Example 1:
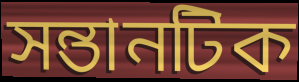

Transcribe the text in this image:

সন্তানটিক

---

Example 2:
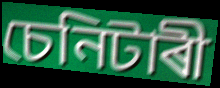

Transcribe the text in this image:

চেনিটাৰী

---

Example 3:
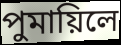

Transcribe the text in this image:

পুমায়িলে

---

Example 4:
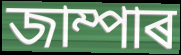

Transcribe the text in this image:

জাম্পাৰ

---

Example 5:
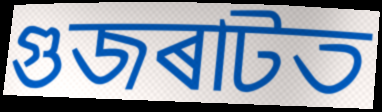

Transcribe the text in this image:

গুজৰাটত